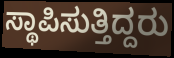
ಸ್ಥಾಪಿಸುತ್ತಿದ್ದರು